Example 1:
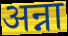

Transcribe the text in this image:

अन्ना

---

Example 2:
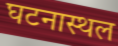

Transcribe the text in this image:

घटनास्थल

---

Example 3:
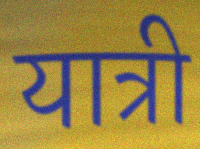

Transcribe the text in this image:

यात्री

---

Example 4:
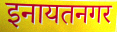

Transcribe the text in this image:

इनायतनगर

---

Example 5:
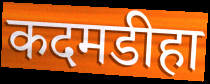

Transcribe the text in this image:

कदमडीहा